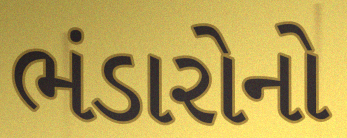
ભંડારોનો